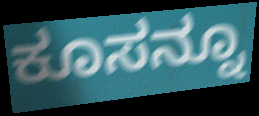
ಕೂಸನ್ನೂ